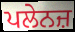
ਪਲੇਨਜ਼